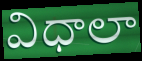
విధాలా